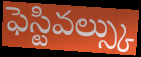
ఫెస్టివల్స్కు